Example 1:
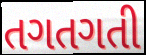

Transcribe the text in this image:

તગતગતી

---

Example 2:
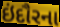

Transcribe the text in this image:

ઇંદૌરના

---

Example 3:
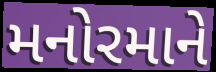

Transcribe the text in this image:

મનોરમાને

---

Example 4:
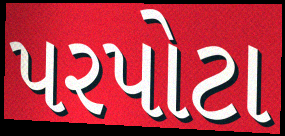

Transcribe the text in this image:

પરપોટા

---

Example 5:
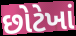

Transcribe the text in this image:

છોટેખાં